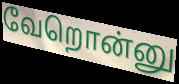
வேறொன்னு